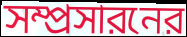
সম্প্রসারনের